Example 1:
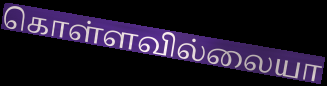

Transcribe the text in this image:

கொள்ளவில்லையா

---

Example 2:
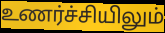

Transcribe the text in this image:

உணர்ச்சியிலும்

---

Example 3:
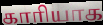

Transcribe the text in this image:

காரியாக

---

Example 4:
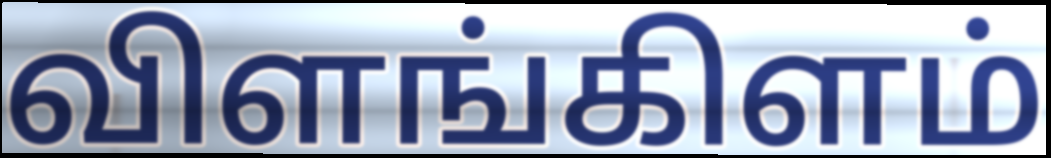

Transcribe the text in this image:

விளங்கிளம்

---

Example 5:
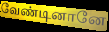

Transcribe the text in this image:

வேண்டினானே